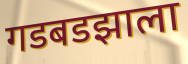
गडबडझाला